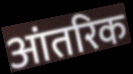
आंतरिक